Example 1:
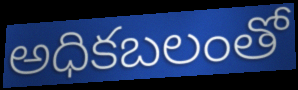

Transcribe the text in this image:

అధికబలంతో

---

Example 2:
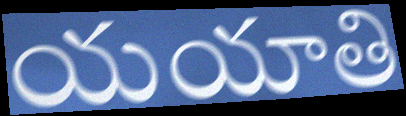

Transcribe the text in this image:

యయాతి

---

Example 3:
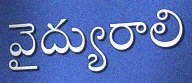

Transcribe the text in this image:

వైద్యురాలి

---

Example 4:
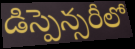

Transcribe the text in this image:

డిస్పెన్సరీలో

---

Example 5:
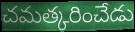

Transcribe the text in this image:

చమత్కరించేడు